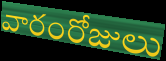
వారంరోజులు